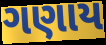
ગણાય